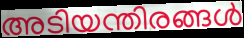
അടിയന്തിരങ്ങൾ